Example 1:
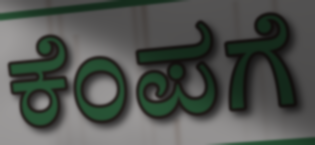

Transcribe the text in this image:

ಕೆಂಪಗೆ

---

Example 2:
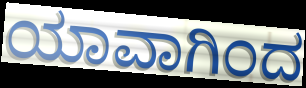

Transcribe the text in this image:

ಯಾವಾಗಿಂದ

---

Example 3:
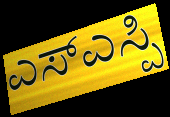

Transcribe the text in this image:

ಎಸ್ಎಸ್ಪಿ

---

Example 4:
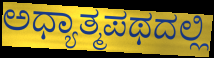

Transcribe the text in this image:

ಅಧ್ಯಾತ್ಮಪಥದಲ್ಲಿ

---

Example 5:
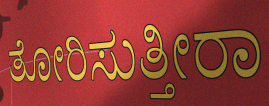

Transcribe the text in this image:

ತೋರಿಸುತ್ತೀರಾ